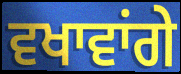
ਵਖਾਵਾਂਗੇ